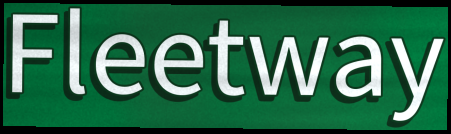
Fleetway